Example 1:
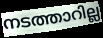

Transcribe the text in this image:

നടത്താറില്ല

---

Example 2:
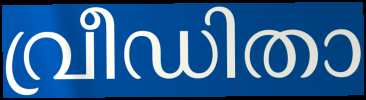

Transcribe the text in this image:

വ്രീഡിതാ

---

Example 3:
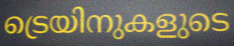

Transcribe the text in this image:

ട്രെയിനുകളുടെ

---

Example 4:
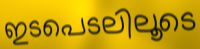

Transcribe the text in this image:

ഇടപെടലിലൂടെ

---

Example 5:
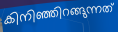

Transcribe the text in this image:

കിനിഞ്ഞിറങ്ങുന്നത്